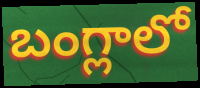
బంగ్లాలో